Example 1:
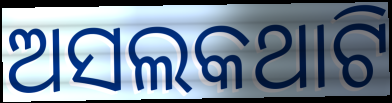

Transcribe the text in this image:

ଅସଲକଥାଟି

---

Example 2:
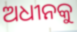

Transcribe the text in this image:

ଅଧୀନକୁ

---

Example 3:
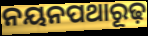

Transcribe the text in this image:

ନୟନପଥାରୂଢ଼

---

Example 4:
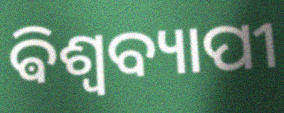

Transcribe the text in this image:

ଵିଶ୍ୱବ୍ୟାପୀ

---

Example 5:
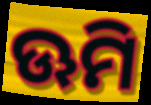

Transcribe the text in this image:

ଊମି